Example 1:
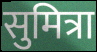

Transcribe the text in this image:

सुमित्रा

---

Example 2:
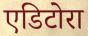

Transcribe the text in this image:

एडिटोरा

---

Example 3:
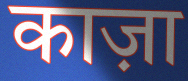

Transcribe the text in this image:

काज़ा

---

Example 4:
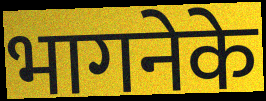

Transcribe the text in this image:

भागनेके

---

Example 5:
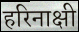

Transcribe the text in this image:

हरिनाक्षी